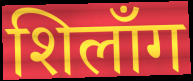
शिलाँग